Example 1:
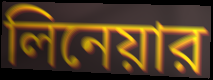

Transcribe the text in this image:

লিনেয়ার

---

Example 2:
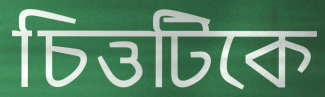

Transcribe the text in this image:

চিত্তটিকে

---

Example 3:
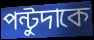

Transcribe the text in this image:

পন্টুদাকে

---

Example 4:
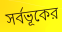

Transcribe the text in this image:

সর্বভূকের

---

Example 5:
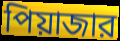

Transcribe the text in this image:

পিয়াজার